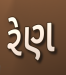
રેણ